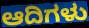
ಆದಿಗಳು